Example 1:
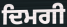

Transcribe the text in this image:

ਦਿਮਗੀ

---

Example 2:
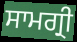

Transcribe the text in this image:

ਸਾਮਗ੍ਰੀ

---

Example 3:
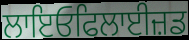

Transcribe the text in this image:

ਲਾਇਓਫਿਲਾਈਜ਼ਡ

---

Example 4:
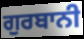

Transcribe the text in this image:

ਗੁਰਬਾਨੀ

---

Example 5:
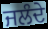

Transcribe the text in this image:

ਜਲੰਦੇ